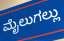
ಮೈಲುಗಲ್ಲು